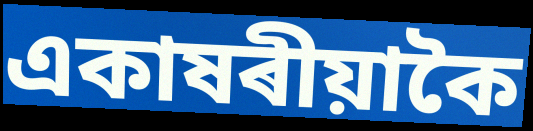
একাষৰীয়াকৈ